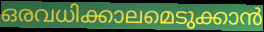
ഒരവധിക്കാലമെടുക്കാൻ